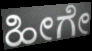
ಹೀಗೇ